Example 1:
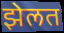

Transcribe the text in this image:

झेलत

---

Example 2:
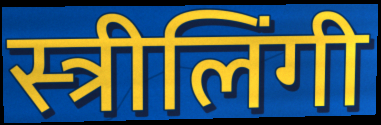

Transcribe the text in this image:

स्त्रीलिंगी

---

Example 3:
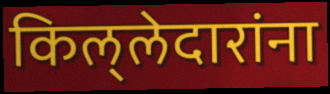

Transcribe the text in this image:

किल्लेदारांना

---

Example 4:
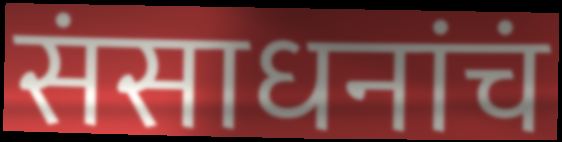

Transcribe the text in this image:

संसाधनांचं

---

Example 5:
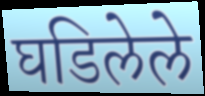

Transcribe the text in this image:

घडिलेले